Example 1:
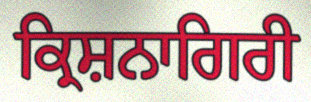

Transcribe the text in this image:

ਕ੍ਰਿਸ਼ਨਾਗਿਰੀ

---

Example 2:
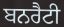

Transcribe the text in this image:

ਬਨਰੈਟੀ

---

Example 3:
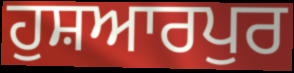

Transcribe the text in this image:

ਹੁਸ਼ਆਰਪੁਰ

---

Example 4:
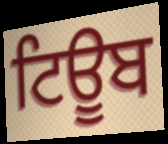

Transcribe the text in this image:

ਟਿਊੂਬ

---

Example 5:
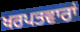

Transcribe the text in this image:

ਖਰਪਤਵਾਰਾਂ